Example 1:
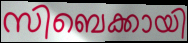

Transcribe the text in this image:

സിബെക്കായി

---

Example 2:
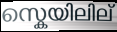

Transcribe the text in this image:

സ്കെയിലില്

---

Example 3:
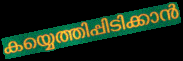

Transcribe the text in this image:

കയ്യെത്തിപ്പിടിക്കാൻ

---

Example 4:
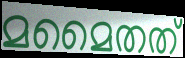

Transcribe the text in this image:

മമൈതത്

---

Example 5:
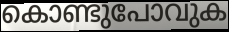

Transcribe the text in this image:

കൊണ്ടുപോവുക